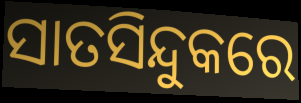
ସାତସିନ୍ଦୁକରେ